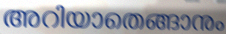
അറിയാതെങ്ങാനും